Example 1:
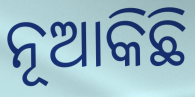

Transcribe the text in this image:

ନୂଆକିଛି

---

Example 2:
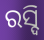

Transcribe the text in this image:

ରସ୍ଦି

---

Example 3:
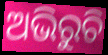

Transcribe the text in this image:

ଅଭିରୁଚି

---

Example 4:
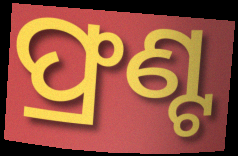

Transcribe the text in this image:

ଫ୍ରଣ୍ଟ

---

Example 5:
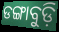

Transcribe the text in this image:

ଡଙ୍ଗାବୁଡ଼ି